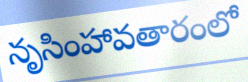
నృసింహావతారంలో